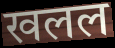
खलल